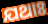
ଯଥାଃ